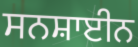
ਸਨਸ਼ਾਈਨ